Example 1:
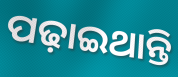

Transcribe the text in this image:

ପଢ଼ାଇଥାନ୍ତି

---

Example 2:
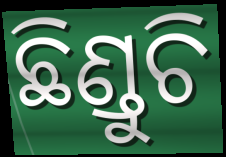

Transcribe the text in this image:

ଛିଣ୍ଡୁଚି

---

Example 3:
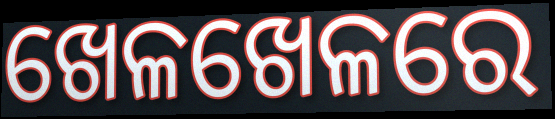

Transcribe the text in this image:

ଖେଳଖେଳରେ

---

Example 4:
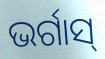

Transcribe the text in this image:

ଭର୍ଗାସ୍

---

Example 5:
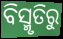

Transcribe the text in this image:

ବିସ୍ମୃତିରୁ